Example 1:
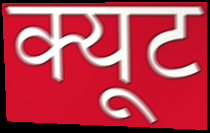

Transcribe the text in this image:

क्यूट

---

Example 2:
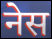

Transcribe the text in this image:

नेस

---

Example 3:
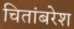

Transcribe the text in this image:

चितांबरेश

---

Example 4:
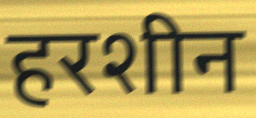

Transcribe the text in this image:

हरशीन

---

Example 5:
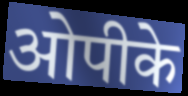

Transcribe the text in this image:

ओपीके